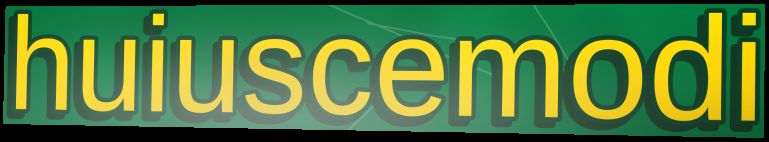
huiuscemodi